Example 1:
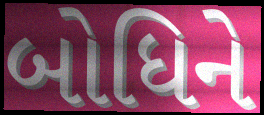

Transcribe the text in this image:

બોધિને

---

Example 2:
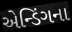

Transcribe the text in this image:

એન્ડિંગના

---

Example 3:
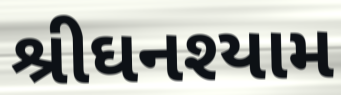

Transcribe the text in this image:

શ્રીઘનશ્યામ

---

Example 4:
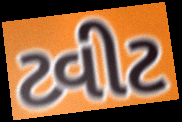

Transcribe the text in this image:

ટ્વીટ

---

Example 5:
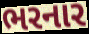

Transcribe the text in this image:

ભરનાર